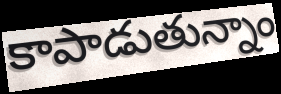
కాపాడుతున్నాం